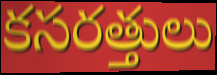
కసరత్తులు